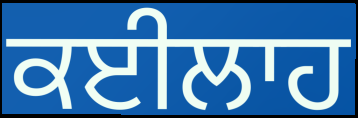
ਕਈਲਾਹ